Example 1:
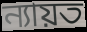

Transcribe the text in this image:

ন্যায়ত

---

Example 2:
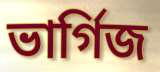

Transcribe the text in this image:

ভাৰ্গিজ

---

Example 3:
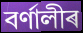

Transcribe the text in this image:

বৰ্ণালীৰ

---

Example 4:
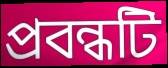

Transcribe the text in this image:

প্ৰবন্ধটি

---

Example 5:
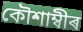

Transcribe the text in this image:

কৌশাম্বীৰ